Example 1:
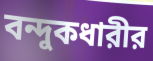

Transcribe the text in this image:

বন্দুকধারীর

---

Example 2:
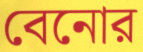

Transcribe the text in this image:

বেনোর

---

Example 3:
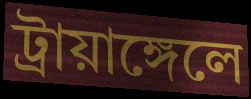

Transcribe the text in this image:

ট্রায়াঙ্গেলে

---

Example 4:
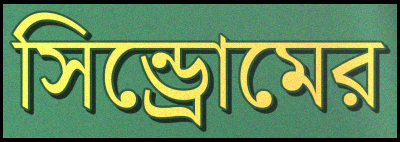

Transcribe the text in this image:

সিন্ড্রোমের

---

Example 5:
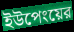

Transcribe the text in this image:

ইউপেংয়ের